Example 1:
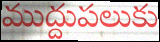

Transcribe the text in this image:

ముద్దుపలుకు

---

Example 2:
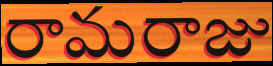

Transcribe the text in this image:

రామరాజు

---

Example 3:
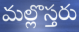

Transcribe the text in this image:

మల్లొస్తరు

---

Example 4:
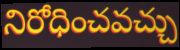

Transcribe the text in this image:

నిరోధించవచ్చు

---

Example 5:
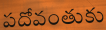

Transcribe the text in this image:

పదోవంతుకు